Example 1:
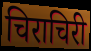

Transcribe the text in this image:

चिराचिरी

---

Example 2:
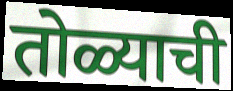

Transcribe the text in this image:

तोळ्याची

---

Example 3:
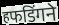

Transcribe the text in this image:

हफडिंगने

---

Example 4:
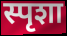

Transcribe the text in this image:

स्पृशा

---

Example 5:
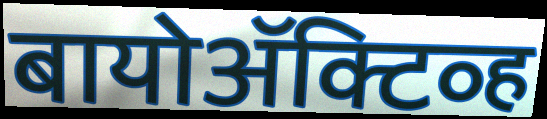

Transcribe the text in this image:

बायोॲक्टिव्ह